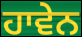
ਹਾਵੇਨ